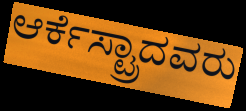
ಆರ್ಕೆಸ್ಟ್ರಾದವರು